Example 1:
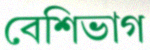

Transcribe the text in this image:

বেশিভাগ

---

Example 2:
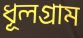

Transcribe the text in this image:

ধূলগ্রাম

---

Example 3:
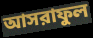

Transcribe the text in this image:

আসরাফুল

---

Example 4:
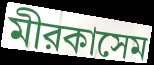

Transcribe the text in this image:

মীরকাসেম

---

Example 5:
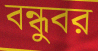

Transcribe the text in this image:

বন্ধুবর